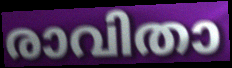
രാവിതാ